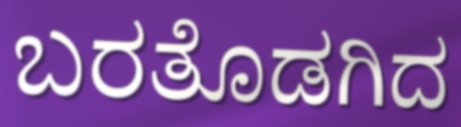
ಬರತೊಡಗಿದ